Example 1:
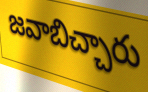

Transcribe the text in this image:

జవాబిచ్చారు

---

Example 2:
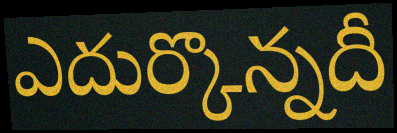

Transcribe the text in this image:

ఎదుర్కొన్నదీ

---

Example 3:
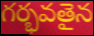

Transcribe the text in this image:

గర్భవతైన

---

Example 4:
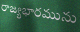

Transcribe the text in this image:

రాజ్యభారమును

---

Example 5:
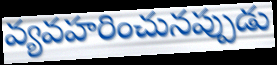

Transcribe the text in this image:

వ్యవహరించునప్పుడు